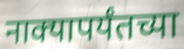
नाक्यापर्यंतच्या